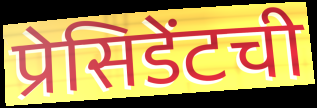
प्रेसिडेंटची